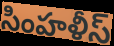
సింహళీస్